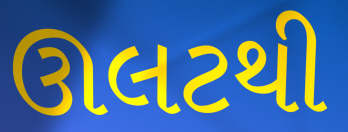
ઊલટથી